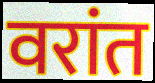
वरांत